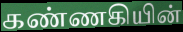
கண்ணகியின்